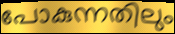
പോകുന്നതിലും